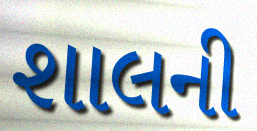
શાલની